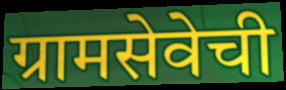
ग्रामसेवेची